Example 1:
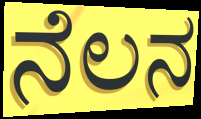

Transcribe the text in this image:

ನೆಲನ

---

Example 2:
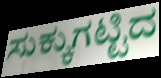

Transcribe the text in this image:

ಸುಕ್ಕುಗಟ್ಟಿದ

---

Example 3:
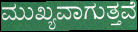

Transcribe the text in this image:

ಮುಖ್ಯವಾಗುತ್ತವೆ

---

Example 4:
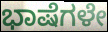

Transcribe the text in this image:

ಭಾಷೆಗಳೇ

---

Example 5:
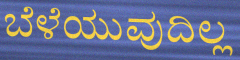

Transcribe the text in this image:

ಬೆಳೆಯುವುದಿಲ್ಲ